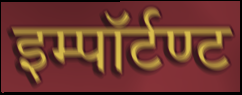
इम्पॉर्टण्ट